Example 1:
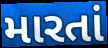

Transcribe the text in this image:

મારતાં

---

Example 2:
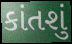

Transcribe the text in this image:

કાંતશું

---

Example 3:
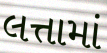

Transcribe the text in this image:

લત્તામાં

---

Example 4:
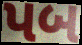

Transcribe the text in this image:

પબ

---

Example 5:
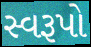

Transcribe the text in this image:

સ્વરૂપો